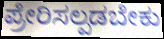
ಪ್ರೇರಿಸಲ್ಪಡಬೇಕು